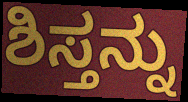
ಶಿಸ್ತನ್ನು